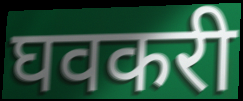
घवकरी